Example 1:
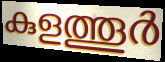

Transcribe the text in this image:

കുളത്തൂർ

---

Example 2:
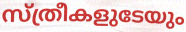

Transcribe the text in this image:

സ്ത്രീകളുടേയും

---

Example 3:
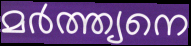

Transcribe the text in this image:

മർത്ത്യനെ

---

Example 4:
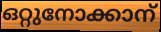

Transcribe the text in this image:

ഒറ്റുനോക്കാന്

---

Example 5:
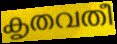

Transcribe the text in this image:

കൃതവതീ